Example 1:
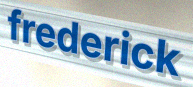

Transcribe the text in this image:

frederick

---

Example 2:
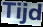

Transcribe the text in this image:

Tijd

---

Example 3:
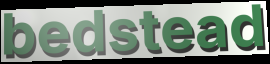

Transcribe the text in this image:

bedstead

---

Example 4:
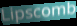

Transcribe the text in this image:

Lipscomb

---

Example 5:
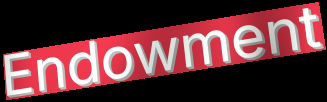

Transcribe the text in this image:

Endowment